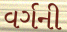
વર્ગની